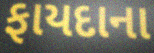
ફાયદાના